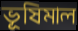
ভূষিমাল